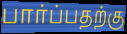
பார்ப்பதற்கு